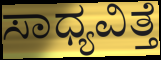
ಸಾಧ್ಯವಿತ್ತೆ